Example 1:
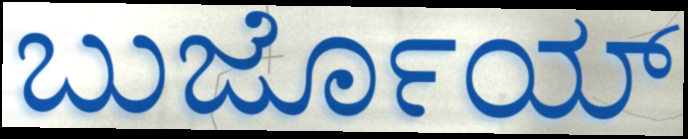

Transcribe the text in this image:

ಬುರ್ಜೊಯ್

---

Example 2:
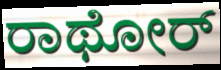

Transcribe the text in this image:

ರಾಥೋರ್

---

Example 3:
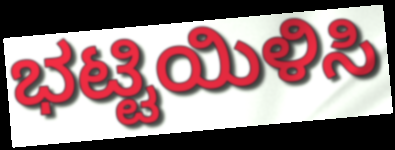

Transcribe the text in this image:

ಭಟ್ಟಿಯಿಳಿಸಿ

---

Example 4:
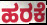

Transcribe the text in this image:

ಹರಕೆ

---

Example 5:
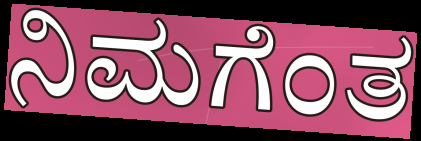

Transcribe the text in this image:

ನಿಮಗೆಂತ